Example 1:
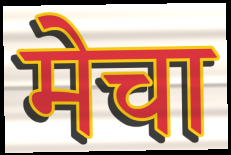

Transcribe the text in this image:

मेचा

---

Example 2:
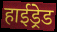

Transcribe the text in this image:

हाईड्रेड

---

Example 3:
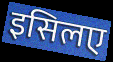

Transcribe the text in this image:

इसिलए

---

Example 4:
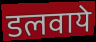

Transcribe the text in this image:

डलवाये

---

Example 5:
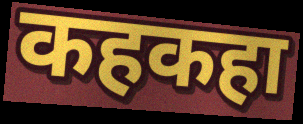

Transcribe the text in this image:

कहकहा